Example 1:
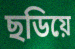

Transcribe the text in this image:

ছডিয়ে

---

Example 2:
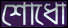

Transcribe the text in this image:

শোধো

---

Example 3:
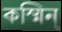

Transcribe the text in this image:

কস্মিন্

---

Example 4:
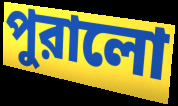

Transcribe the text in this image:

পুরালো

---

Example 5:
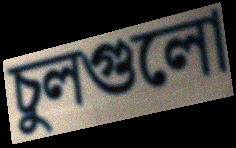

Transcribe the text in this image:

চুলগুলো